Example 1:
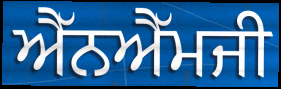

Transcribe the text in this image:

ਐੱਨਐੱਮਜੀ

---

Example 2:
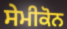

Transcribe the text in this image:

ਸੇਮੀਕੋਨ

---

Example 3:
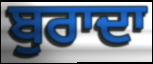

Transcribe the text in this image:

ਬੁਰਾਦਾ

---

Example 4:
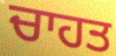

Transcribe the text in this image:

ਚਾਹਤ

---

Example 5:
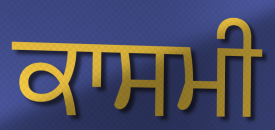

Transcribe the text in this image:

ਕਾਸਮੀ